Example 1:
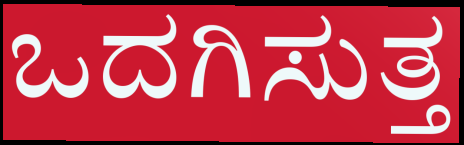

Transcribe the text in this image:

ಒದಗಿಸುತ್ತ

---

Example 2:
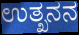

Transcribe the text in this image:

ಉತ್ಖನನ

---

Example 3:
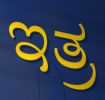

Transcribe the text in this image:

ಇತ್ರ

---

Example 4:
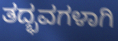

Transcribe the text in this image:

ತದ್ಭವಗಳಾಗಿ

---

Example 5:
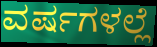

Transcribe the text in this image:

ವರ್ಷಗಳಲ್ಲೆ